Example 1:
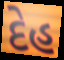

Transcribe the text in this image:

દેહ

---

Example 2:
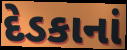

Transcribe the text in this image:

દેડકાનાં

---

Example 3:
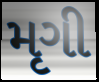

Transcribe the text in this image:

મૃગી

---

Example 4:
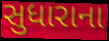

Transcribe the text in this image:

સુધારાના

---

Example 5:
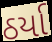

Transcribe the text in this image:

ઠર્યા